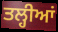
ਤਲ੍ਹੀਆਂ